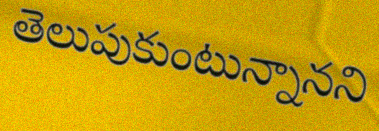
తెలుపుకుంటున్నానని